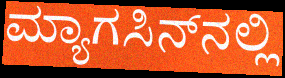
ಮ್ಯಾಗಸಿನ್‍ನಲ್ಲಿ